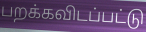
பறக்கவிடப்பட்டு